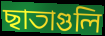
ছাতাগুলি